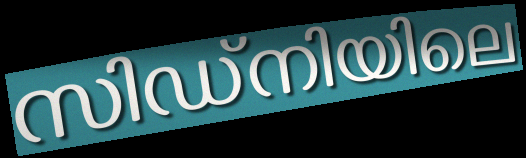
സിഡ്നിയിലെ